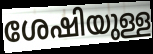
ശേഷിയുള്ള